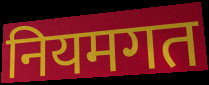
नियमगत